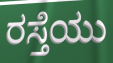
ರಸ್ತೆಯು